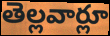
తెల్లవార్లూ